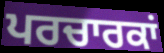
ਪਰਚਾਰਕਾਂ